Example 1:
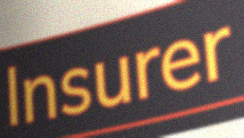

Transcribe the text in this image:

Insurer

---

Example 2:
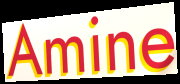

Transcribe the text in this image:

Amine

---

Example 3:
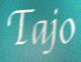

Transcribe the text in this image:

Tajo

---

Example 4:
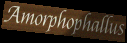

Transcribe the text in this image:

Amorphophallus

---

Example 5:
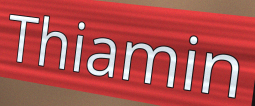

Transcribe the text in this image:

Thiamin